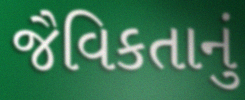
જૈવિકતાનું